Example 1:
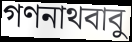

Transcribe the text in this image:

গণনাথবাবু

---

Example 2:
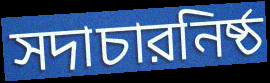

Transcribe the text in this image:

সদাচারনিষ্ঠ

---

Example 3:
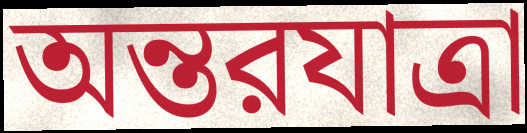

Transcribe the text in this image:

অন্তরযাত্রা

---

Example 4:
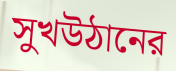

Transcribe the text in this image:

সুখউঠানের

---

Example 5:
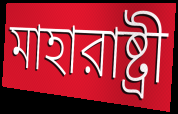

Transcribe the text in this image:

মাহারাষ্ট্রী